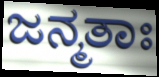
ಜನ್ಮತಾಃ